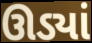
ઊડ્યાં